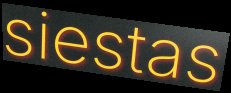
siestas